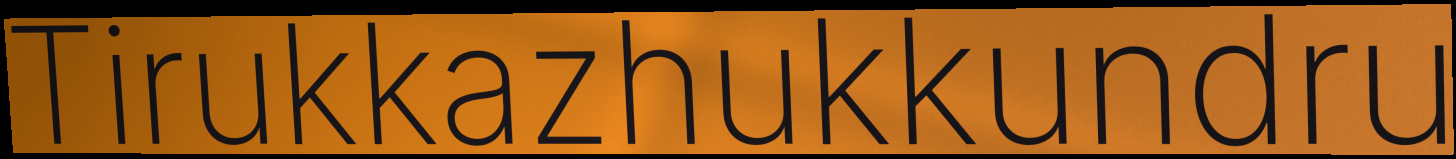
Tirukkazhukkundru